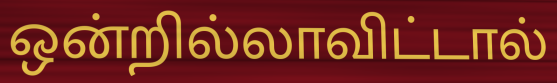
ஒன்றில்லாவிட்டால்